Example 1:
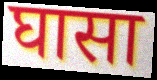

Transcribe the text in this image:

घासा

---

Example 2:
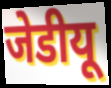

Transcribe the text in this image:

जेडीयू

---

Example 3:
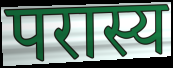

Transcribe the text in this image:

परास्य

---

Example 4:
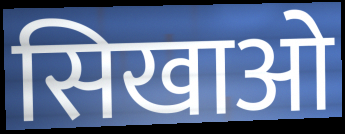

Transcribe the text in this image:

सिखाओ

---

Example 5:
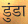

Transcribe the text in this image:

डुंडा